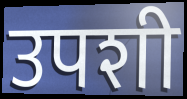
उपशी